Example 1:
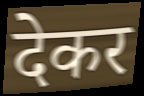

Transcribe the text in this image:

देकर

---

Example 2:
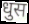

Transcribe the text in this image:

धुस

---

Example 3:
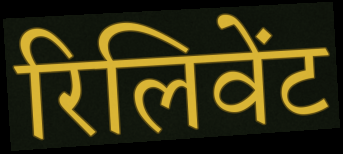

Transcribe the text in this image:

रिलिवेंट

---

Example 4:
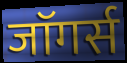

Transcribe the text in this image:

जॉगर्स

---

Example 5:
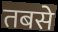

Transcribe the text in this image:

तबसे